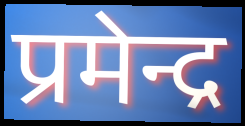
प्रमेन्द्र